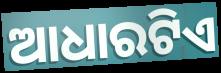
ଆଧାରଟିଏ